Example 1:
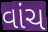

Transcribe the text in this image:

વાંચ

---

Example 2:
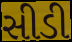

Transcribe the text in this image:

સીડી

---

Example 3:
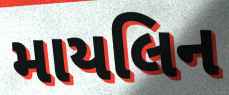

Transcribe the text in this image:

માયલિન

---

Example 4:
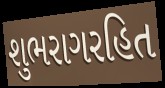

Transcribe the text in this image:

શુભરાગરહિત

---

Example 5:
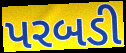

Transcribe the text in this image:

પરબડી